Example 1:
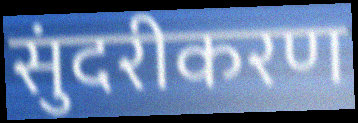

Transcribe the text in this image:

सुंदरीकरण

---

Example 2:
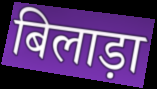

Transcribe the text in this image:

बिलाड़ा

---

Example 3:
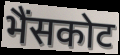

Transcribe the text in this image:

भैंसकोट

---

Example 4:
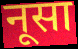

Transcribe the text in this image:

नूसा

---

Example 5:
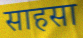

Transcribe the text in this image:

साहसा